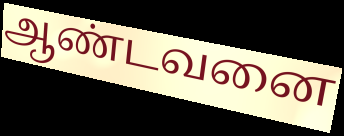
ஆண்டவனை